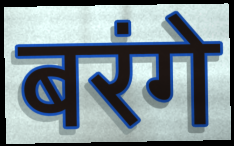
बरंगे